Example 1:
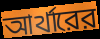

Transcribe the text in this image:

আর্থারের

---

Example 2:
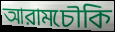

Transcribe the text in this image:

আরামচৌকি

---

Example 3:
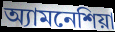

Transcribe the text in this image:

অ্যামনেশিয়া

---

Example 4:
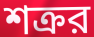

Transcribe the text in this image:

শক্রর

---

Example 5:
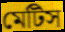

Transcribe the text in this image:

মেটিস